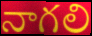
నాగలి